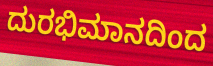
ದುರಭಿಮಾನದಿಂದ